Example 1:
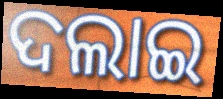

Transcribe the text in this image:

ଦଲାଇ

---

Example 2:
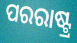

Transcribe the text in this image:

ପରରାଷ୍ଟ୍ର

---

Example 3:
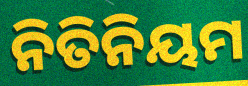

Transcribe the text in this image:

ନିତିନିୟମ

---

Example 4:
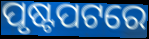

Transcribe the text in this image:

ପୃଷ୍ଟପଟରେ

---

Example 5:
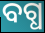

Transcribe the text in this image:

ବଗ୍ଧ